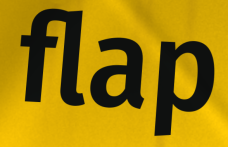
flap